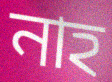
নাহ